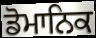
ਡੋਮਾਨਿਕ